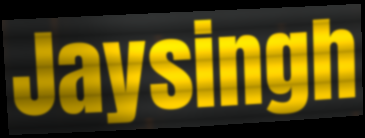
Jaysingh